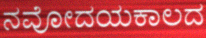
ನವೋದಯಕಾಲದ